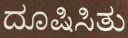
ದೂಷಿಸಿತು